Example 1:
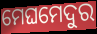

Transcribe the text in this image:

ମେଘମେଦୁର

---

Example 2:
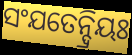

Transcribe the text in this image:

ସଂଯତେନ୍ଦ୍ରିୟଃ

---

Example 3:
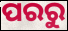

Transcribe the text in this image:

ପରରୁ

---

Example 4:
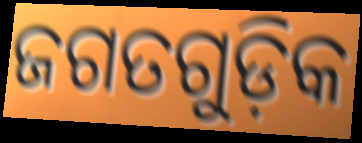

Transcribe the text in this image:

ଜଗତଗୁଡ଼ିକ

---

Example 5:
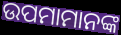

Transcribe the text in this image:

ଉପମାମାନଙ୍କ